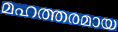
മഹത്തരമായ